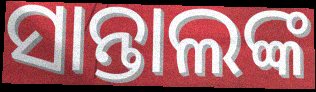
ସାନ୍ତାଲଙ୍କ